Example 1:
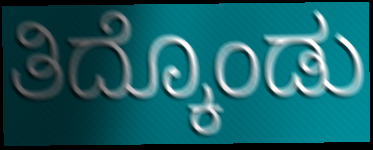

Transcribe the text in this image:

ತಿದ್ಕೊಂಡು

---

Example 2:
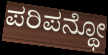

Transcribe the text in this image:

ಪರಿಪನ್ಥೋ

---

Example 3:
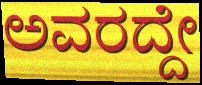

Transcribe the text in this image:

ಅವರದ್ದೇ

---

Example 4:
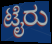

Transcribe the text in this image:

ಟೈರು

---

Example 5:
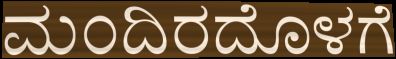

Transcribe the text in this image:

ಮಂದಿರದೊಳಗೆ